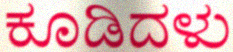
ಕೂಡಿದಳು